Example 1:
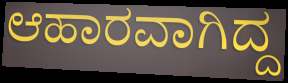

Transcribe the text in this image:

ಆಹಾರವಾಗಿದ್ದ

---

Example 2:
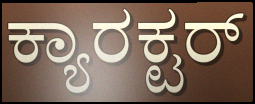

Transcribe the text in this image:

ಕ್ಯಾರಕ್ಟರ್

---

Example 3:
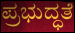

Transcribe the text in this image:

ಪ್ರಭುದ್ಧತೆ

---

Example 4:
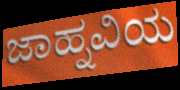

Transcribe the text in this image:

ಜಾಹ್ನವಿಯ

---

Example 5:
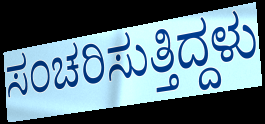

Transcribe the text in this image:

ಸಂಚರಿಸುತ್ತಿದ್ದಳು